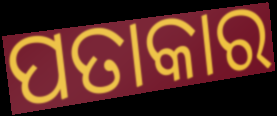
ପତାକାର